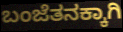
ಬಂಜೆತನಕ್ಕಾಗಿ